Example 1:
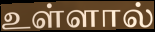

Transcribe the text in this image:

உள்ளால்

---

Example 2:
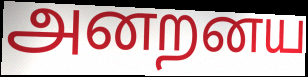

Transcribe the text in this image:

அனறனய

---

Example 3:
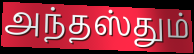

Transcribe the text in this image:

அந்தஸ்தும்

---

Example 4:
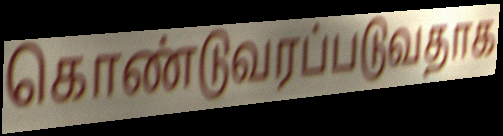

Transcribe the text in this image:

கொண்டுவரப்படுவதாக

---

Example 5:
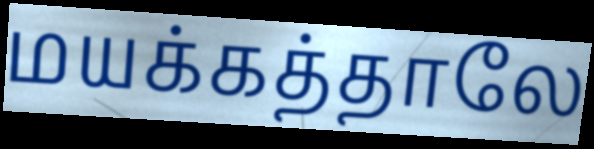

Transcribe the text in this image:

மயக்கத்தாலே